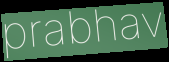
prabhav